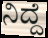
ನಿದ್ದೆ